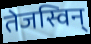
तेजस्विन्